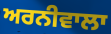
ਅਰਨੀਵਾਲਾ